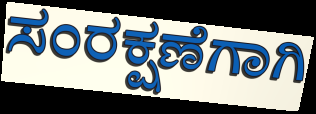
ಸಂರಕ್ಷಣೆಗಾಗಿ